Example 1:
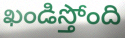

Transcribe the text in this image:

ఖండిస్తోంది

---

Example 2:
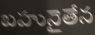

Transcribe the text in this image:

బహునైతేన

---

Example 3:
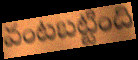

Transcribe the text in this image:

వంటబట్టింది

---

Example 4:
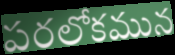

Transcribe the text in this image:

పరలోకమున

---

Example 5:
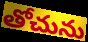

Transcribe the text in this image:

తోచును